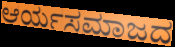
ಆರ್ಯಸಮಾಜದ